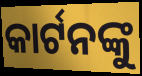
କାର୍ଟନଙ୍କୁ